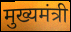
मुख्यमंत्री